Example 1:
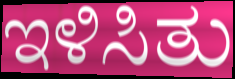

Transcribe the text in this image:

ಇಳಿಸಿತು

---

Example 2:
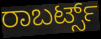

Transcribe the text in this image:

ರಾಬರ್ಟ್ಸ್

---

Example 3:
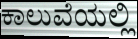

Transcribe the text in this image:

ಕಾಲುವೆಯಲ್ಲಿ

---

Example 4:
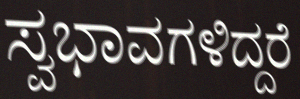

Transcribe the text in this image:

ಸ್ವಭಾವಗಳಿದ್ದರೆ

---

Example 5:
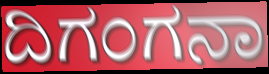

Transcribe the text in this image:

ದಿಗಂಗನಾ